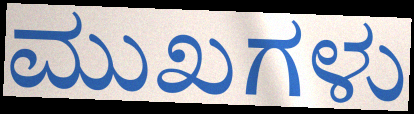
ಮುಖಗಳು